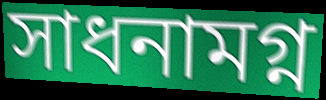
সাধনামগ্ন